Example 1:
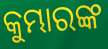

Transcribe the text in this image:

କୁମ୍ଭାରଙ୍କ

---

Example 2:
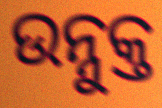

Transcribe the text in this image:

ଉନ୍ନୁକ୍ତ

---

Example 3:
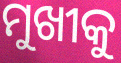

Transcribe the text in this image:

ମୁଖୀକୁ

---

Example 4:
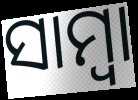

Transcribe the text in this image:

ସାମ୍ବା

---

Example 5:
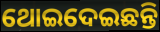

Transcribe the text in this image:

ଥୋଇଦେଇଛନ୍ତି